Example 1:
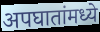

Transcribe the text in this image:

अपघातांमध्ये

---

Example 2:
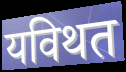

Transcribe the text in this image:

यविथत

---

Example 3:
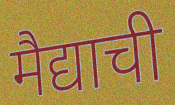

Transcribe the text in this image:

मैद्याची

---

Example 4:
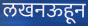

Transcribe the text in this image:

लखनऊहून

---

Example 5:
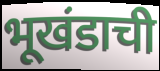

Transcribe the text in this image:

भूखंडाची